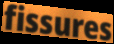
fissures